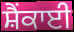
ਸ਼ੈਂਕਾਈ